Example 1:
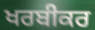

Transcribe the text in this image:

ਖਰਬੀਕਰ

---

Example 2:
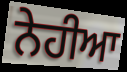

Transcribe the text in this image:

ਨੇਹੀਆ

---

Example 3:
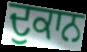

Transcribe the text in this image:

ਦੁਕਾਨ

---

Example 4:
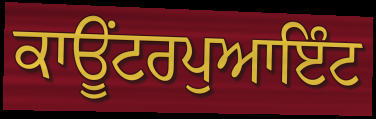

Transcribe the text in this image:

ਕਾਊਂਟਰਪੁਆਇੰਟ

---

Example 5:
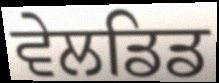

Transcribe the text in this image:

ਵੇਲਡਿਡ